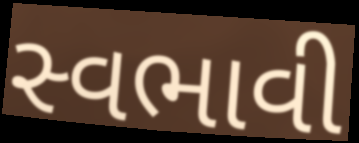
સ્વભાવી